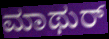
ಮಾಥುರ್